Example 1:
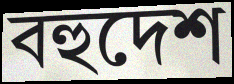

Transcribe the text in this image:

বহুদেশ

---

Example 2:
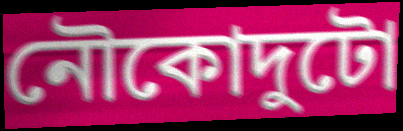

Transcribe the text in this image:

নৌকোদুটো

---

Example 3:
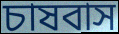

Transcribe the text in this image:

চাষবাস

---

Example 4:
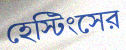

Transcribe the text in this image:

হেস্টিংসের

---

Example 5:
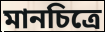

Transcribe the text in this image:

মানচিত্রে